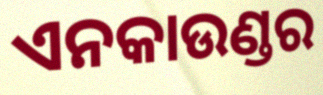
ଏନକାଉଣ୍ଡର